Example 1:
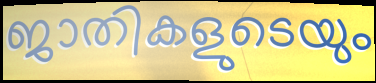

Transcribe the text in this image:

ജാതികളുടെയും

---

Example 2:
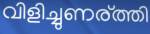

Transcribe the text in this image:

വിളിച്ചുണര്ത്തി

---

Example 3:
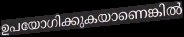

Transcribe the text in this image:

ഉപയോഗിക്കുകയാണെങ്കിൽ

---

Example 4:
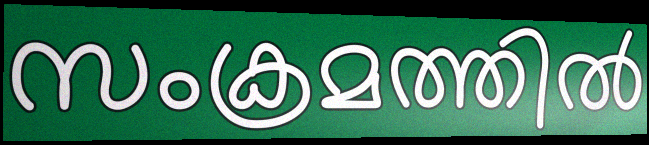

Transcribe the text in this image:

സംക്രമത്തിൽ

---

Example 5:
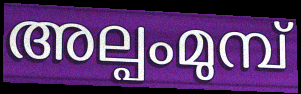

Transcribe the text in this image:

അല്പംമുമ്പ്